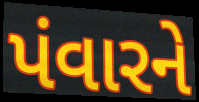
પંવારને